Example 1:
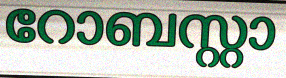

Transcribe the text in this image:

റോബസ്റ്റാ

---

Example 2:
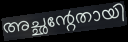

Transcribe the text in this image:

അച്ഛന്റേതായി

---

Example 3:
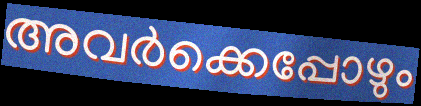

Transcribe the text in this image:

അവർക്കെപ്പോഴും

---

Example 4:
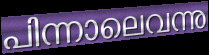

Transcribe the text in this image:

പിന്നാലെവന്നു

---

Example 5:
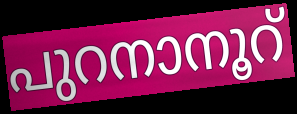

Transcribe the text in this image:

പുറനാനൂറ്